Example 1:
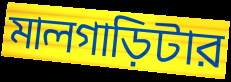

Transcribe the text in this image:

মালগাড়িটার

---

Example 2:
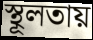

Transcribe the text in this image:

স্থূলতায়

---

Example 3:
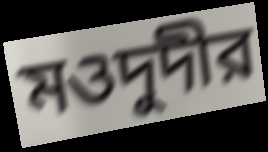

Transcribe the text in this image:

মওদুদীর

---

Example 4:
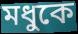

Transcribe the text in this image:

মধুকে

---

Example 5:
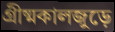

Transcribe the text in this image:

গ্রীষ্মকালজুড়ে